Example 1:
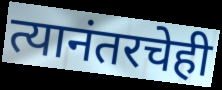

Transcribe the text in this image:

त्यानंतरचेही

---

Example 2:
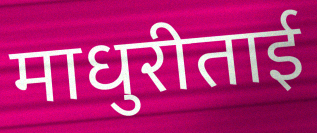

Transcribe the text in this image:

माधुरीताई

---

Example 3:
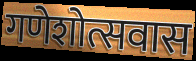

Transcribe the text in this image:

गणेशोत्सवास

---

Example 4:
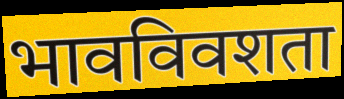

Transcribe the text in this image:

भावविवशता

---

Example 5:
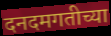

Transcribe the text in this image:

दनदमगतीच्या